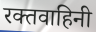
रक्तवाहिनी